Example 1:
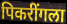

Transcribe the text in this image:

पिकरींगला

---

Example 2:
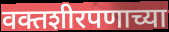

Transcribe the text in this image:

वक्तशीरपणाच्या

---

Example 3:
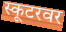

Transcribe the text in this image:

स्कूटरवर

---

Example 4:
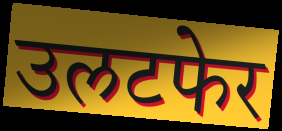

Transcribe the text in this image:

उलटफेर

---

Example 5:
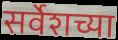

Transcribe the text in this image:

सर्वेशच्या